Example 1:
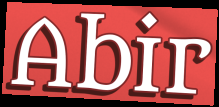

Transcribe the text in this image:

Abir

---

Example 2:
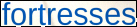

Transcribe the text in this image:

fortresses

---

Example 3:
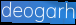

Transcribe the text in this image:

deogarh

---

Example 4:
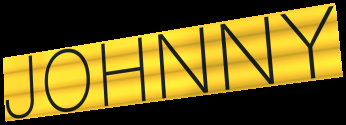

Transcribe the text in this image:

JOHNNY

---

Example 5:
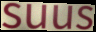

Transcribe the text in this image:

suus